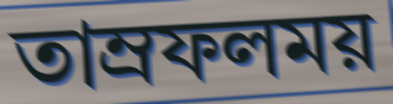
তাম্রফলময়